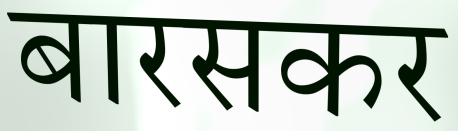
बारसकर